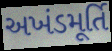
અખંડમૂર્તિ